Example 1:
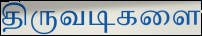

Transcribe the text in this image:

திருவடிகளை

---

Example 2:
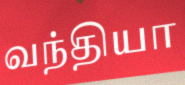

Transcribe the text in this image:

வந்தியா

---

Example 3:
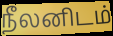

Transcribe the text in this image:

நீலனிடம்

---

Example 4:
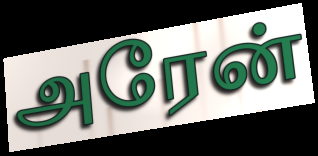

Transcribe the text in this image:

அரேன்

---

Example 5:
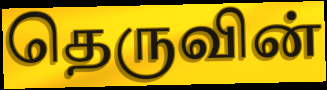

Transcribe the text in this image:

தெருவின்